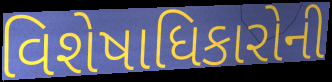
વિશેષાધિકારોની